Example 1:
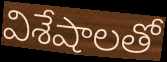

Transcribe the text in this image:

విశేషాలతో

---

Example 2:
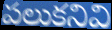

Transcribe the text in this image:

పలుకనివి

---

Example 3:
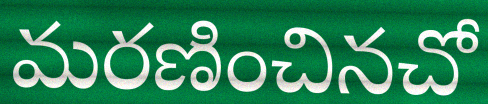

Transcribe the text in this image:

మరణించినచో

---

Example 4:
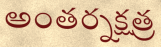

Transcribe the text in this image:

అంతర్నక్షత్ర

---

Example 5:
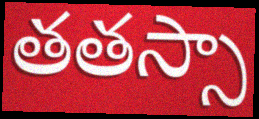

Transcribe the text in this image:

తతస్సా